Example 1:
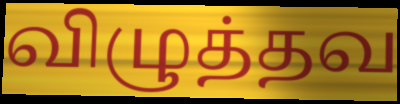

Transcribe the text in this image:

விழுத்தவ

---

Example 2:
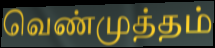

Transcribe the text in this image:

வெண்முத்தம்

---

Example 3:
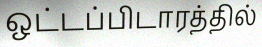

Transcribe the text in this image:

ஒட்டப்பிடாரத்தில்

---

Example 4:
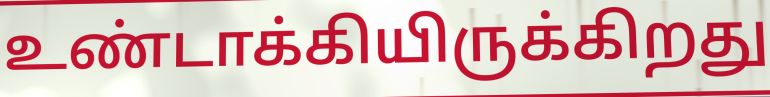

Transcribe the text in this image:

உண்டாக்கியிருக்கிறது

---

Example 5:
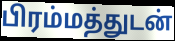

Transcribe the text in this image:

பிரம்மத்துடன்